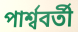
পার্শ্ববর্তী